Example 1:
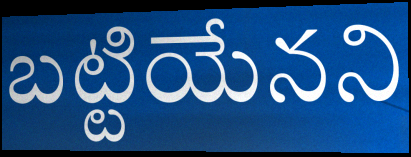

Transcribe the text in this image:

బట్టియేనని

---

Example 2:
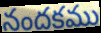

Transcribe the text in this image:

నందకము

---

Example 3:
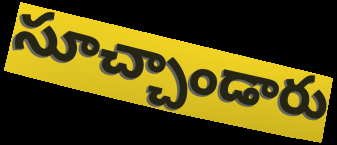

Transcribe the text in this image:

సూచ్చాండారు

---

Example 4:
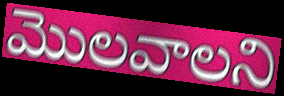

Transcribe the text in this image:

మొలవాలని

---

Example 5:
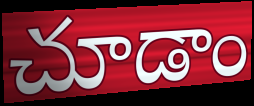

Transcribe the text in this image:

చూడాం